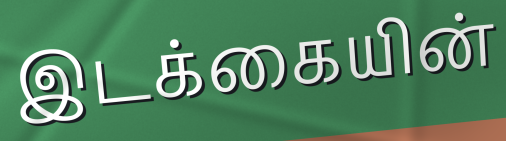
இடக்கையின்